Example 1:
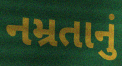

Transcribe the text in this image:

નમ્રતાનું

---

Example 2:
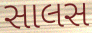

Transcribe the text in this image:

સાલસ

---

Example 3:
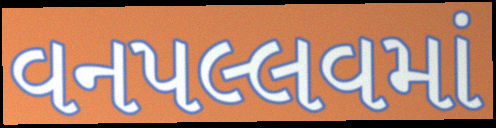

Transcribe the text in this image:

વનપલ્લવમાં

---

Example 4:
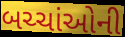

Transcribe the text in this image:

બચ્ચાંઓની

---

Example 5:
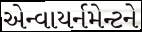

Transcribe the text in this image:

એન્વાયર્નમેન્ટને